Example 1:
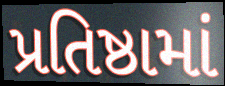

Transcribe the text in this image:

પ્રતિષ્ઠામાં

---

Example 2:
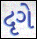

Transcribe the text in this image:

દૃગે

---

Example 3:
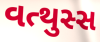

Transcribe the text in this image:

વત્થુસ્સ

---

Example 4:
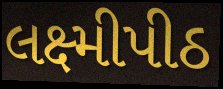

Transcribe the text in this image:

લક્ષ્મીપીઠ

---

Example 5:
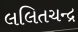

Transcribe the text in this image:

લલિતચન્દ્ર